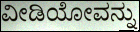
ವೀಡಿಯೋವನ್ನು